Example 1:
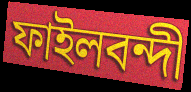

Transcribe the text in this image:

ফাইলবন্দী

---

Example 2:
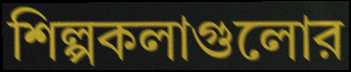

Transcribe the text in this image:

শিল্পকলাগুলোর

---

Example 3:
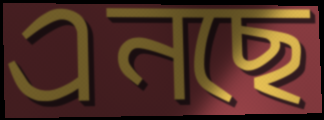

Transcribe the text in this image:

এনছে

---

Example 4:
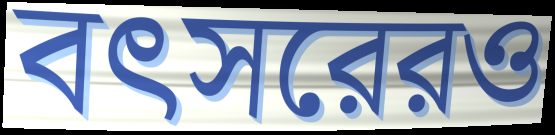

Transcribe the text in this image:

বৎসরেরও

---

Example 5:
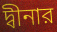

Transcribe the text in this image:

দ্বীনার